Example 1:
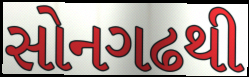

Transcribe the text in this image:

સોનગઢથી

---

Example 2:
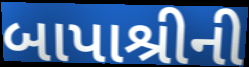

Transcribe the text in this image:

બાપાશ્રીની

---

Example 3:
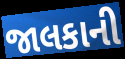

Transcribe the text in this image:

જાલકાની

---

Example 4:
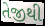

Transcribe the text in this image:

તેજીથી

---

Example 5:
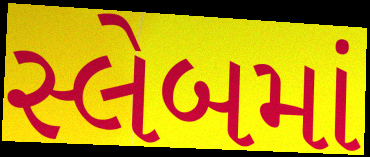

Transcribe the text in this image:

સ્લેબમાં